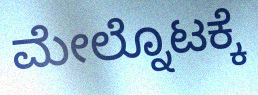
ಮೇಲ್ನೊಟಕ್ಕೆ